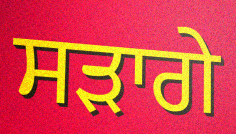
ਸੜਾਗੇ